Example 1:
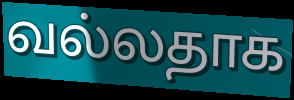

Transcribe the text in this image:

வல்லதாக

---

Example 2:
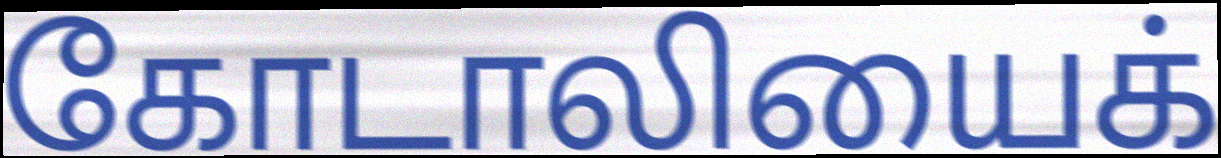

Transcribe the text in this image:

கோடாலியைக்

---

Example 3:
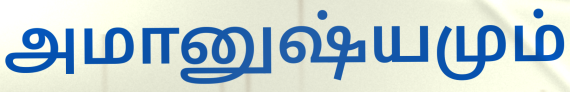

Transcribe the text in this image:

அமானுஷ்யமும்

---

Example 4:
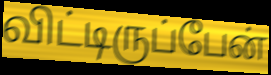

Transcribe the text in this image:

விட்டிருப்பேன்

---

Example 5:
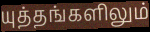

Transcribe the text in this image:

யுத்தங்களிலும்